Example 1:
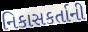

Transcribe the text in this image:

નિકાસકર્તાની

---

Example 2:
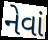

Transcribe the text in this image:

નેવાં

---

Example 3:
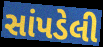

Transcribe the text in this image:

સાંપડેલી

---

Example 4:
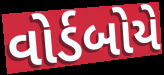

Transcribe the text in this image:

વોર્ડબોયે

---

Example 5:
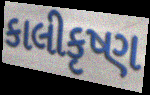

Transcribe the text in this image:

કાલીકૃષ્ણ